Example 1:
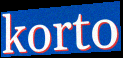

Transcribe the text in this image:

korto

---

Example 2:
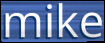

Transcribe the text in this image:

mike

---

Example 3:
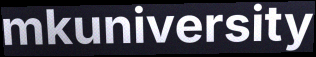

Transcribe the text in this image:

mkuniversity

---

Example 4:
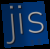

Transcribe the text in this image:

jis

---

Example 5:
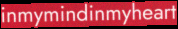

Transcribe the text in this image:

inmymindinmyheart